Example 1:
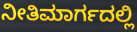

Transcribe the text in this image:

ನೀತಿಮಾರ್ಗದಲ್ಲಿ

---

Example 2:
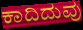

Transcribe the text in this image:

ಕಾದಿದುವು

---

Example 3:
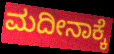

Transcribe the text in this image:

ಮದೀನಾಕ್ಕೆ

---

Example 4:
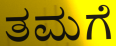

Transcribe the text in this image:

ತಮಗೆ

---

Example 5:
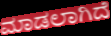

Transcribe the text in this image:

ಮಾಡಲಾಗಿದೆ